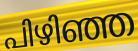
പിഴിഞ്ഞ